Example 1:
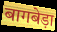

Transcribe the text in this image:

बागबेड़ा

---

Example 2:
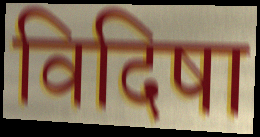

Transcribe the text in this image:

विदिषा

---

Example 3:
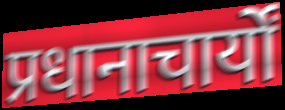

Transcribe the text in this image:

प्रधानाचार्यों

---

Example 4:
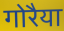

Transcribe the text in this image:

गोरैया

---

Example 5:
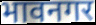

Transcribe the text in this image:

भावनगर